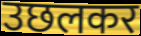
उछलकर